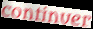
continuer